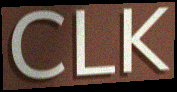
CLK